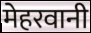
मेहरवानी